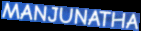
MANJUNATHA